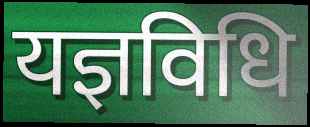
यज्ञविधि